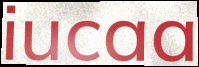
iucaa